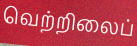
வெற்றிலைப்